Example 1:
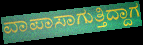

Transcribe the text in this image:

ವಾಪಾಸಾಗುತ್ತಿದ್ದಾಗ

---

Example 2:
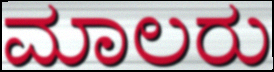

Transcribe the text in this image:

ಮಾಲರು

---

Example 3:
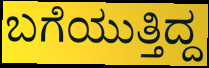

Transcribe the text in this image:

ಬಗೆಯುತ್ತಿದ್ದ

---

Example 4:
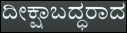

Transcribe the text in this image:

ದೀಕ್ಷಾಬದ್ಧರಾದ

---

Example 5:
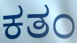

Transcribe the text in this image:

ಕತಂ